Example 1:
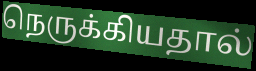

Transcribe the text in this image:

நெருக்கியதால்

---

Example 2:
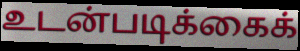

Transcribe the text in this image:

உடன்படிக்கைக்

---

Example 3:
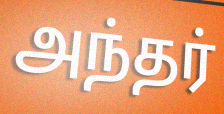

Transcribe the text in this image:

அந்தர்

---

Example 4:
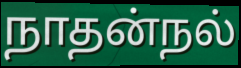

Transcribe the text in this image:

நாதன்நல்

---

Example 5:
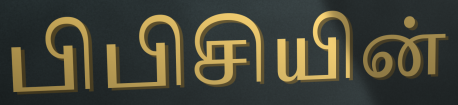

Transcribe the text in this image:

பிபிசியின்